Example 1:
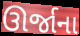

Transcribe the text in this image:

ઊર્જાના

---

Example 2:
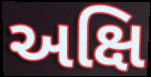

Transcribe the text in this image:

અક્ષિ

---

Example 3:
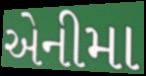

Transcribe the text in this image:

એનીમા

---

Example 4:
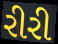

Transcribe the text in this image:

રીરી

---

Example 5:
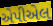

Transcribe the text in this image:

એપીએલ